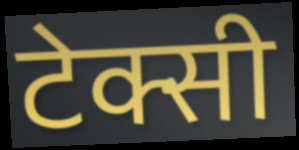
टेक्सी